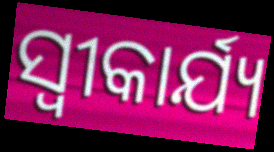
ସ୍ଵୀକାର୍ଯ୍ୟ